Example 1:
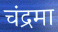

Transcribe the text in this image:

चंद्रमा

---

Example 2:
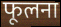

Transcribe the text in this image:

फूलना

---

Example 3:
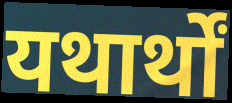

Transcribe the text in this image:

यथार्थों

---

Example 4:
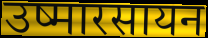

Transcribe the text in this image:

उष्मारसायन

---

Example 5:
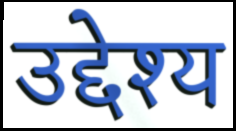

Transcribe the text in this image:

उद्देश्य